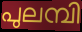
പുലമ്പി